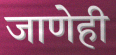
जाणेही